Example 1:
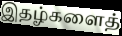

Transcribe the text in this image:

இதழ்களைத்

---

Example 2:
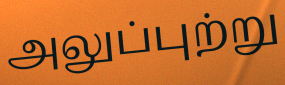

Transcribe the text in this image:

அலுப்புற்று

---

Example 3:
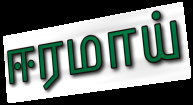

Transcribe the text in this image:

ஈரமாய்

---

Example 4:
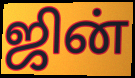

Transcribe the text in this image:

ஜின்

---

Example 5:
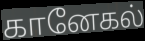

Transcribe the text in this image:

கானேகல்